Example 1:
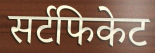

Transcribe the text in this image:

सर्टफिकेट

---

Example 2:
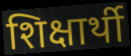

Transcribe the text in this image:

शिक्षार्थी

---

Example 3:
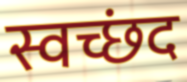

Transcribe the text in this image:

स्वच्छंद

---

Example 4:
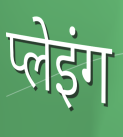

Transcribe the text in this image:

प्लेइंग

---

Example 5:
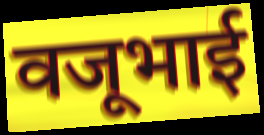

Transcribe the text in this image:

वजूभाई